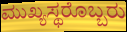
ಮುಖ್ಯಸ್ಥರೊಬ್ಬರು